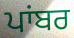
ਪਾਂਬਰ